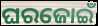
ଘରଜୋଇଁ